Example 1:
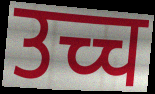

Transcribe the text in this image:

उच्च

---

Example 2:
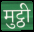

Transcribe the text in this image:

मुट्ठी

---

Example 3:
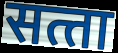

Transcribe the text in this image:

सत्‍ता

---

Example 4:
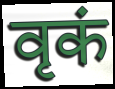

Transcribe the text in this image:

वृकं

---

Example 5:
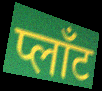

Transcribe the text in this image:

प्लाँट